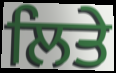
ਲਿਤੇ